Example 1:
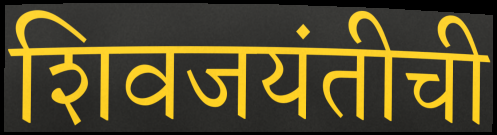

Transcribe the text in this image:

शिवजयंतीची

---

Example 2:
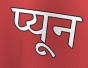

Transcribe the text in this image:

प्यून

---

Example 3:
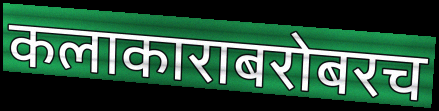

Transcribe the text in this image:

कलाकाराबरोबरच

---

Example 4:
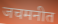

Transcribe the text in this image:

जचमनीत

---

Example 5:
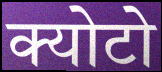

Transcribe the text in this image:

क्‍योटो